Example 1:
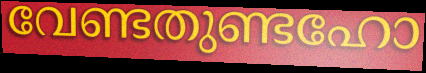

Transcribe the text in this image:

വേണ്ടതുണ്ടഹോ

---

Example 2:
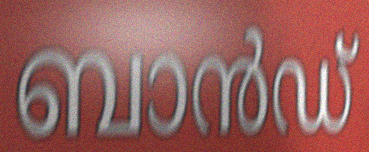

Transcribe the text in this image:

ബാൻഡ്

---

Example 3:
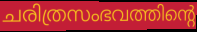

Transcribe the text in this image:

ചരിത്രസംഭവത്തിന്റെ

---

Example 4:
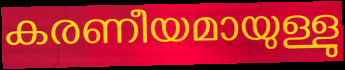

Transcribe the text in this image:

കരണീയമായുള്ളു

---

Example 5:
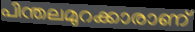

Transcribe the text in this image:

പിന്തലമുറക്കാരാണ്